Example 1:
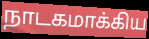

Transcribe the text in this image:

நாடகமாக்கிய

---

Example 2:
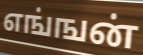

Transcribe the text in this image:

எங்ஙன்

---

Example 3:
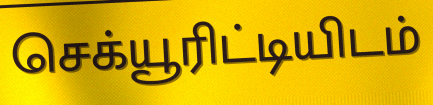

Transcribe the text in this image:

செக்யூரிட்டியிடம்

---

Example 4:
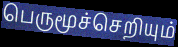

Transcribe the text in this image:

பெருமூச்செறியும்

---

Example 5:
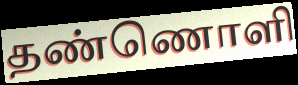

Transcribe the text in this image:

தண்ணொளி